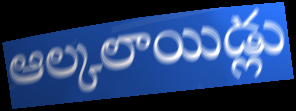
ఆల్కలాయిడ్లు